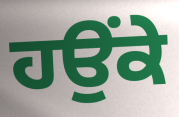
ਹਉਂਕੇ